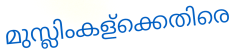
മുസ്ലിംകള്ക്കെതിരെ